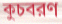
কুচবরণ